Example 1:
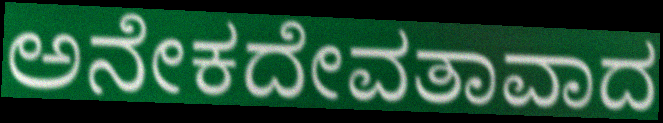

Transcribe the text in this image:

ಅನೇಕದೇವತಾವಾದ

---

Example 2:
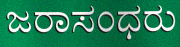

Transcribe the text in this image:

ಜರಾಸಂಧರು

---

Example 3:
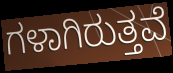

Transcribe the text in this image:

ಗಳಾಗಿರುತ್ತವೆ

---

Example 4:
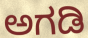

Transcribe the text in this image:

ಅಗಡಿ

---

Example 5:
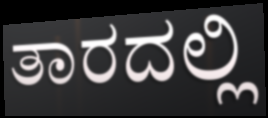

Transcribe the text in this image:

ತಾರದಲ್ಲಿ